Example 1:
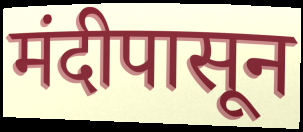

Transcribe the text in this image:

मंदीपासून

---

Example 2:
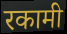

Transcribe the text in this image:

रकामी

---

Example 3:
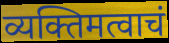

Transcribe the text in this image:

व्यक्तिमत्वाचं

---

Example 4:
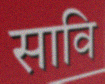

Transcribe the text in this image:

सावि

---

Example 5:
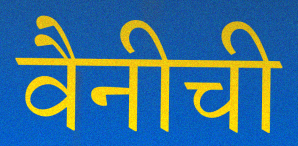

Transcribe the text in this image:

वैनीची